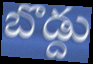
బొడ్దు